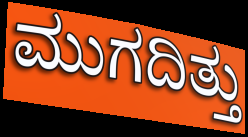
ಮುಗದಿತ್ತು